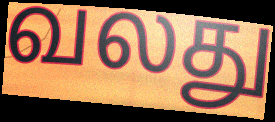
வலது